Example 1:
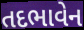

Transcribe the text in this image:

તદભાવેન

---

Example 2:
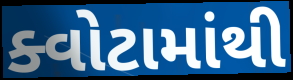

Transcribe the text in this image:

ક્વોટામાંથી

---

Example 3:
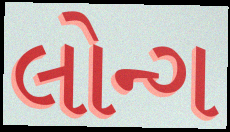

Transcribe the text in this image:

લોન્ગ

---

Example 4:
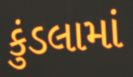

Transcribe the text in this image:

કુંડલામાં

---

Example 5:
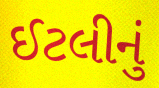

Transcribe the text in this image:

ઈટલીનું